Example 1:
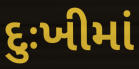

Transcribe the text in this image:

દુઃખીમાં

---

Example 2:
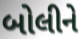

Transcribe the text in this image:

બોલીને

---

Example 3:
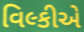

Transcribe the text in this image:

વિલ્કીએ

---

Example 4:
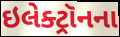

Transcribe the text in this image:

ઇલેક્ટ્રૉનના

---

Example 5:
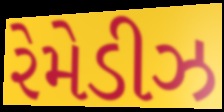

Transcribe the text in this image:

રેમેડીઝ